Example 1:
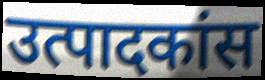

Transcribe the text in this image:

उत्पादकांस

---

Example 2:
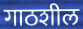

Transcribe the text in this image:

गाठशील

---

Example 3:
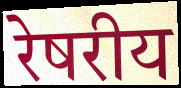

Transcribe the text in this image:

रेषरीय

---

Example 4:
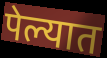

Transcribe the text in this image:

पेल्यात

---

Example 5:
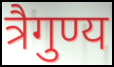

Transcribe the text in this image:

त्रैगुण्य